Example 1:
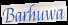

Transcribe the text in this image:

Barhuwa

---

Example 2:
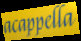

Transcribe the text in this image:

acappella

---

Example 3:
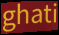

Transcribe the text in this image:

ghati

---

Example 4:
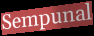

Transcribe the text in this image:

Sempunal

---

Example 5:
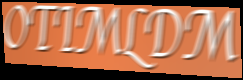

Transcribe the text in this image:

OTIMLDM